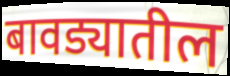
बावड्यातील